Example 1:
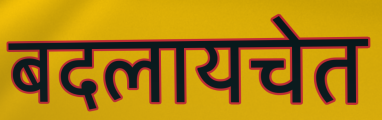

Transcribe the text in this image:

बदलायचेत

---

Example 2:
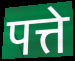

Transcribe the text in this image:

पत्ते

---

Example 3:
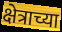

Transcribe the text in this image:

क्षेत्राच्या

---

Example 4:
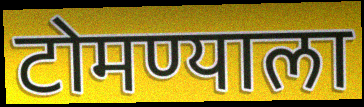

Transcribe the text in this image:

टोमण्याला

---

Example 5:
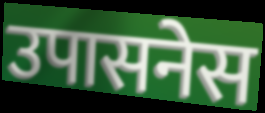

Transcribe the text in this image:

उपासनेस